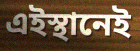
এইস্থানেই